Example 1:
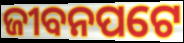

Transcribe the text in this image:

ଜୀବନପଟେ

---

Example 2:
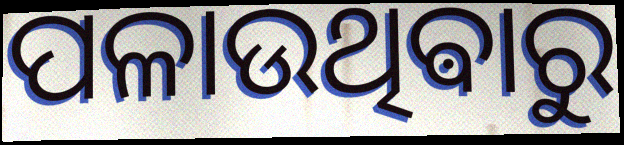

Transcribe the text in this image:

ପଳାଉଥିଵାରୁ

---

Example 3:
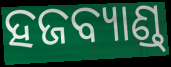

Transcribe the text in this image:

ହଜବ୍ୟାଣ୍ଡ୍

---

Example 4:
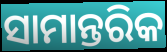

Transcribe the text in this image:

ସାମାନ୍ତରିକ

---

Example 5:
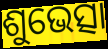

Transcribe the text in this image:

ଶୁଭେତ୍ସା